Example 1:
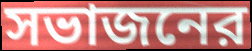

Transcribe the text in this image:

সভাজনের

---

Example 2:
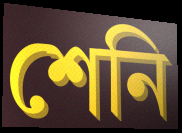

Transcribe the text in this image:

শেনি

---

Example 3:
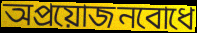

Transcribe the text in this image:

অপ্রয়োজনবোধে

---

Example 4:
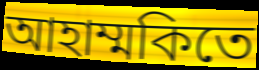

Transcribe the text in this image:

আহাম্মকিতে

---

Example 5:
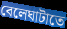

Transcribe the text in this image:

বেলেঘাটাতে